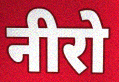
नीरो